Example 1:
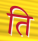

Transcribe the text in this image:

ति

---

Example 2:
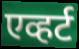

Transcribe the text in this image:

एव्हर्ट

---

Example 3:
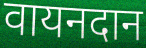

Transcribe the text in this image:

वायनदान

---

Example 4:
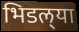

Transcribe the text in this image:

भिडल्या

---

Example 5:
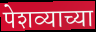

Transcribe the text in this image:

पेशव्याच्या